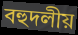
বহুদলীয়